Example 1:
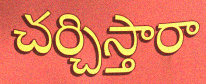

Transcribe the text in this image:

చర్చిస్తారా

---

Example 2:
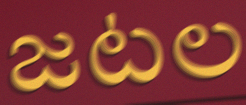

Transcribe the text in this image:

జటల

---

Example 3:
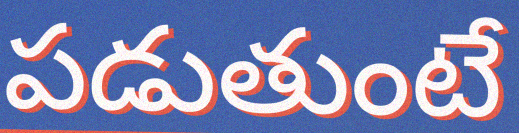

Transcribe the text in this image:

పడుతుంటే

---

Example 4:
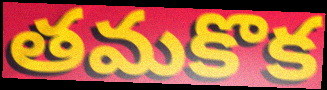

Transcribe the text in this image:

తమకొక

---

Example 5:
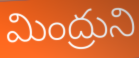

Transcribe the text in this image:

మింద్రుని